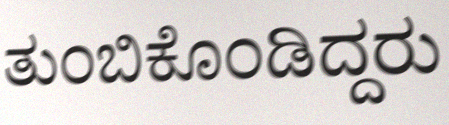
ತುಂಬಿಕೊಂಡಿದ್ದರು